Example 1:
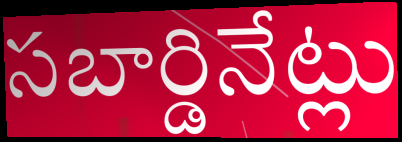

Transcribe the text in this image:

సబార్డినేట్లు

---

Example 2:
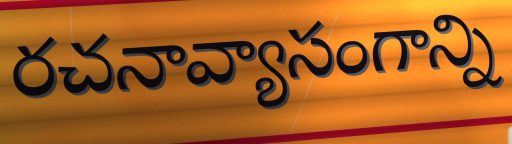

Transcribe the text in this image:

రచనావ్యాసంగాన్ని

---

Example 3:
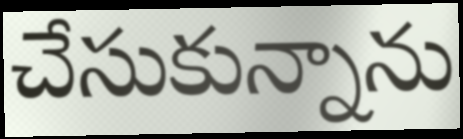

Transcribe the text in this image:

చేసుకున్నాను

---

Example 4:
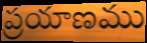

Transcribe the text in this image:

ప్రయాణము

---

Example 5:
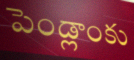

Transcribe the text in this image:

పెండ్లాంకు